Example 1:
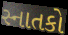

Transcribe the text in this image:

સ્નાતકો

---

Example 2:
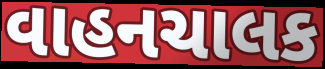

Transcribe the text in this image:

વાહનચાલક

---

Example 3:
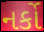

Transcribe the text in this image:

નર્કો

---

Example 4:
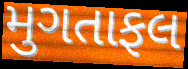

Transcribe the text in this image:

મુગતાફલ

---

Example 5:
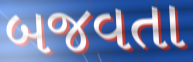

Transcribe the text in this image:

બજવતા